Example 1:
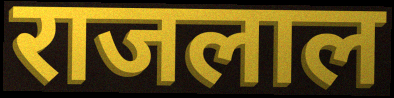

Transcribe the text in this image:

राजलाल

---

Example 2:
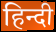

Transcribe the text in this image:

हिन्‍दी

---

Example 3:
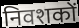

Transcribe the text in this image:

निवशकों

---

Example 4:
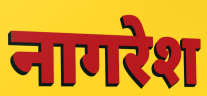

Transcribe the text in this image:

नागरेश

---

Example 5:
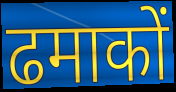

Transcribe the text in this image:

ढमाकों